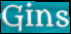
Gins